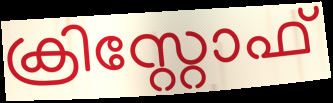
ക്രിസ്റ്റോഫ്